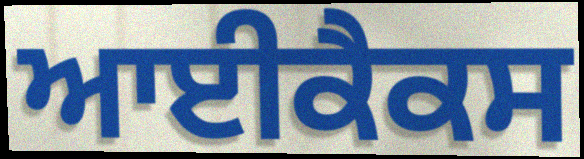
ਆਈਕੈਕਸ